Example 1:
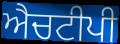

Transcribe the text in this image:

ਐਚਟੀਪੀ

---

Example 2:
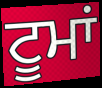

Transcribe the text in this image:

ਟੂਮਾਂ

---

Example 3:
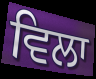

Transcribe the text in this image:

ਵਿਲਾ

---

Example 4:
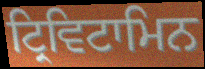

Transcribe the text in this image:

ਟ੍ਰਿਵਿਟਾਮਿਨ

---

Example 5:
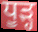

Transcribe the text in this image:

ਧੂੜ੍ਹ